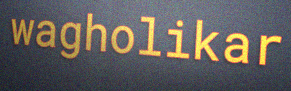
wagholikar